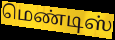
மெண்டிஸ்